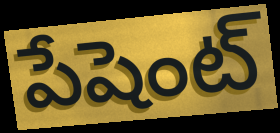
పేషెంట్